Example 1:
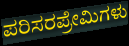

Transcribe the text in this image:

ಪರಿಸರಪ್ರೇಮಿಗಳು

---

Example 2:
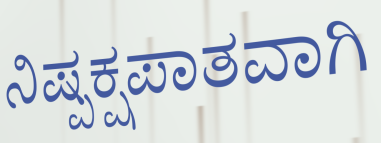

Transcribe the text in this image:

ನಿಷ್ಪಕ್ಷಪಾತವಾಗಿ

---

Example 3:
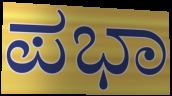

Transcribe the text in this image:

ಪಭಾ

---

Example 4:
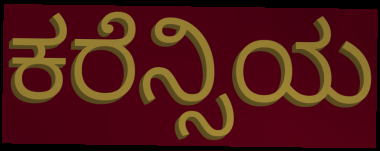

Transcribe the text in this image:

ಕರೆನ್ಸಿಯ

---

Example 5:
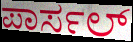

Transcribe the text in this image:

ಪಾರ್ಸಲ್